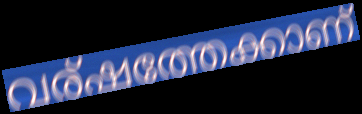
വര്ഷത്തേക്കാണ്